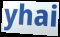
yhai